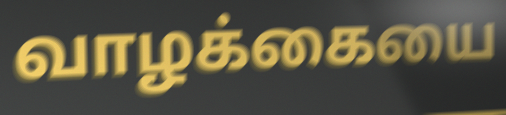
வாழக்கையை